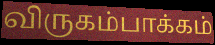
விருகம்பாக்கம்